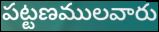
పట్టణములవారు